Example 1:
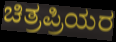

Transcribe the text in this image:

ಚಿತ್ರಪ್ರಿಯರ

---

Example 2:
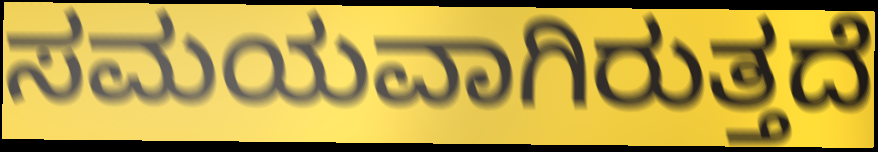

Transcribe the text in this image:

ಸಮಯವಾಗಿರುತ್ತದೆ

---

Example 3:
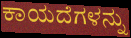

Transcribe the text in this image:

ಕಾಯದೆಗಳನ್ನು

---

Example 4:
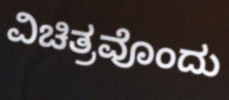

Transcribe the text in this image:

ವಿಚಿತ್ರವೊಂದು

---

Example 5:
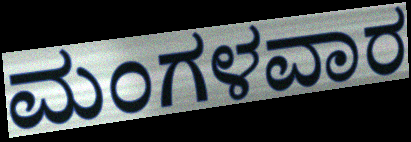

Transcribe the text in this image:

ಮಂಗಳವಾರ